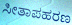
ಸೀತಾಪಹರಣ